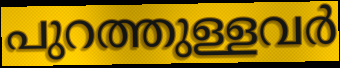
പുറത്തുള്ളവർ